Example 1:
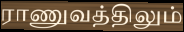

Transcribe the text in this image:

ராணுவத்திலும்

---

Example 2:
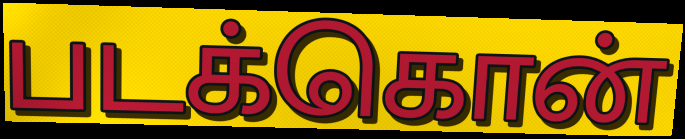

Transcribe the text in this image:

படக்கொன்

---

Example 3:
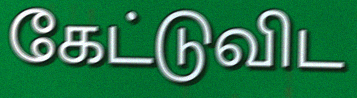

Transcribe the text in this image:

கேட்டுவிட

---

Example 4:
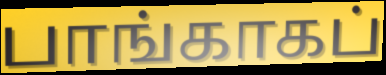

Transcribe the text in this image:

பாங்காகப்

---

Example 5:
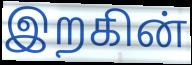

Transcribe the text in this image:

இறகின்